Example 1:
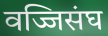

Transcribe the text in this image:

वज्जिसंघ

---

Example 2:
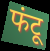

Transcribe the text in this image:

फंटू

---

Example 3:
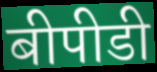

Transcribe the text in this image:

बीपीडी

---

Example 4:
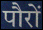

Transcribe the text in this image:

पौरों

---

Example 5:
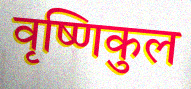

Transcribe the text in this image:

वृष्णिकुल